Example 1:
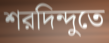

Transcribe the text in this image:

শরদিন্দুতে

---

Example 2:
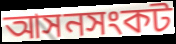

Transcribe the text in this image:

আসনসংকট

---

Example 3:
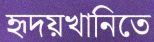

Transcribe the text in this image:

হৃদয়খানিতে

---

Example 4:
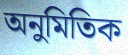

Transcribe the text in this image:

অনুমিতিক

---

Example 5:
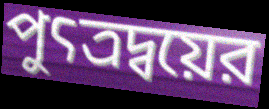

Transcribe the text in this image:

পুৎত্রদ্বয়ের